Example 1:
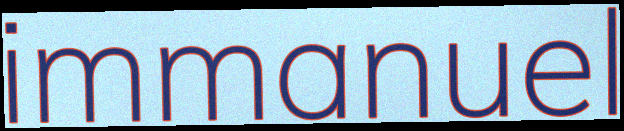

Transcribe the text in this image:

immanuel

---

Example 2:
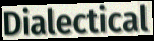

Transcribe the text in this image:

Dialectical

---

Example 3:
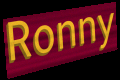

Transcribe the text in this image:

Ronny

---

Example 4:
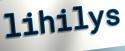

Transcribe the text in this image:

lihilys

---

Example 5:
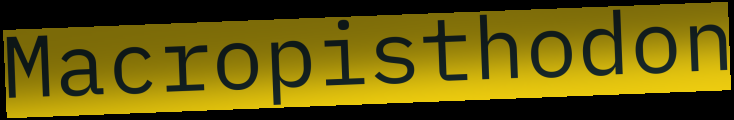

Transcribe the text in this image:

Macropisthodon